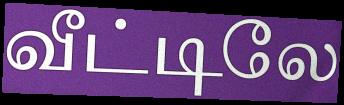
வீட்டிலே